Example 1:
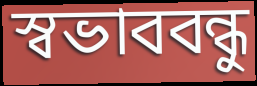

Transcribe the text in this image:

স্বভাববন্ধু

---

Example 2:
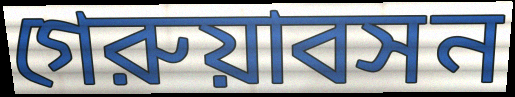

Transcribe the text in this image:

গেরুয়াবসন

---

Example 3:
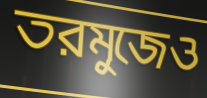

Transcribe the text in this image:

তরমুজেও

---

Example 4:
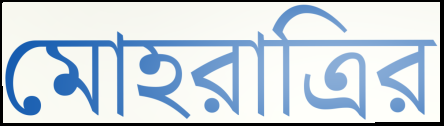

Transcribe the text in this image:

মোহরাত্রির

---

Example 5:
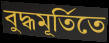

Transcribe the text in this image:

বুদ্ধমূর্তিতে